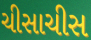
ચીસાચીસ